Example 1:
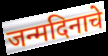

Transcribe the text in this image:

जन्मदिनाचे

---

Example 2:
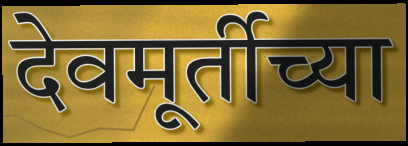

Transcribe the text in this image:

देवमूर्तीच्या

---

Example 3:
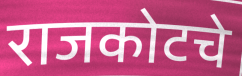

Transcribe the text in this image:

राजकोटचे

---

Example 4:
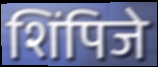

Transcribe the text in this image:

शिंपिजे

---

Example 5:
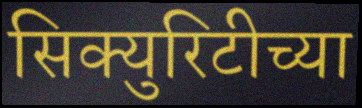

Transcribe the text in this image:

सिक्युरिटीच्या